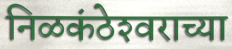
निळकंठेश्वराच्या